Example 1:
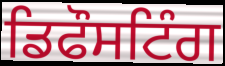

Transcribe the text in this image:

ਡਿਫੌਸਟਿੰਗ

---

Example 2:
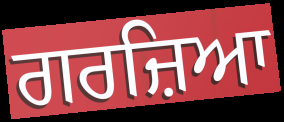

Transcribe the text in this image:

ਗਰਜ਼ਿਆ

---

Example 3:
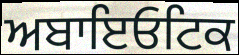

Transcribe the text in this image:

ਅਬਾਇਓਟਿਕ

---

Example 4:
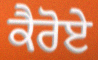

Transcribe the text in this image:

ਕੈਰੋਏ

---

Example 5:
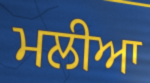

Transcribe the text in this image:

ਮਲੀਆ